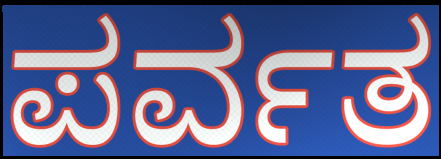
ಪರ್ವತ